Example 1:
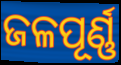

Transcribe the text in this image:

ଜଳପୂର୍ଣ୍ଣ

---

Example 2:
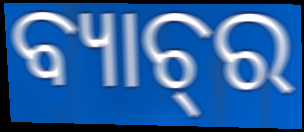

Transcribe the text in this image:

ବ୍ୟାଚ୍‌ର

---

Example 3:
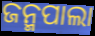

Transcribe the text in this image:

ଜନ୍ମପାଲା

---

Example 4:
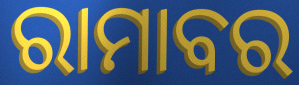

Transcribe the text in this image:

ରାମାବର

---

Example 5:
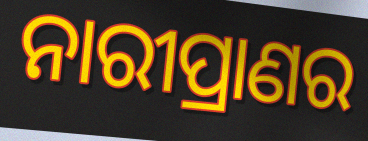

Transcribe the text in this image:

ନାରୀପ୍ରାଣର